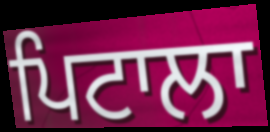
ਪਿਟਾਲਾ